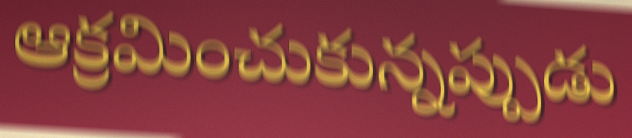
ఆక్రమించుకున్నప్పుడు